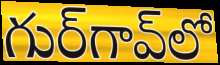
గుర్‌గావ్‌లో